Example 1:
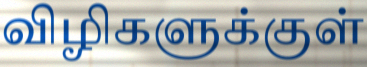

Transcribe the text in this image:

விழிகளுக்குள்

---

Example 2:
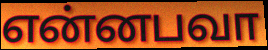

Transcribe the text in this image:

என்னபவா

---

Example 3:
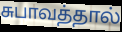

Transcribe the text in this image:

சுபாவத்தால்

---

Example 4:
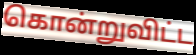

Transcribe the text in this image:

கொன்றுவிட்ட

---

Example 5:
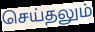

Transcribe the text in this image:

செய்தலும்